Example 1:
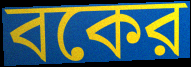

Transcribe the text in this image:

বকের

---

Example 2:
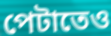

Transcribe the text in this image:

পেটাতেও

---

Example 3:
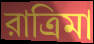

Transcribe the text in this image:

রাত্রিমা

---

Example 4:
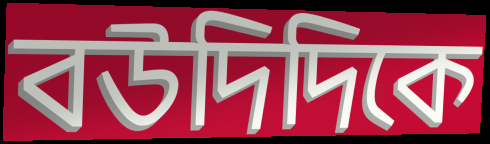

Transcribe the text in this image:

বউদিদিকে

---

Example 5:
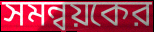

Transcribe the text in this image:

সমন্বয়কের